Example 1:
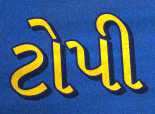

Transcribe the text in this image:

ટોપી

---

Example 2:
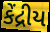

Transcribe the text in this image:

કેંદ્રીય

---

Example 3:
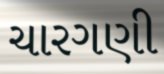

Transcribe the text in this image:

ચારગણી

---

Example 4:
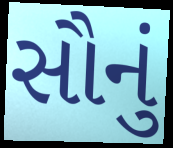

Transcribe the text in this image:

સૌનું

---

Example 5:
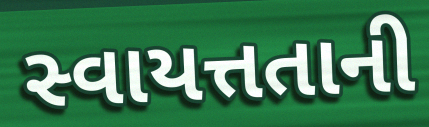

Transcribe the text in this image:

સ્વાયત્તતાની